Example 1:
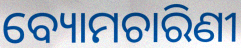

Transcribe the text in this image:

ବ୍ୟୋମଚାରିଣୀ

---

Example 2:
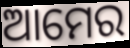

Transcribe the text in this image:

ଆମେର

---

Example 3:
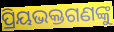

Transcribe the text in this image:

ପ୍ରିୟଭକ୍ତଗଣଙ୍କୁ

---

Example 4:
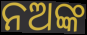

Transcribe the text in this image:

ନଅଙ୍କ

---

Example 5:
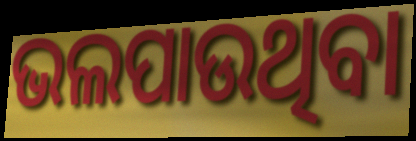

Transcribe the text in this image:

ଭଲପାଉଥିବା